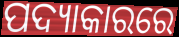
ପଦ୍ଯାକାରରେ